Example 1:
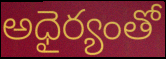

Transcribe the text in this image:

అధైర్యంతో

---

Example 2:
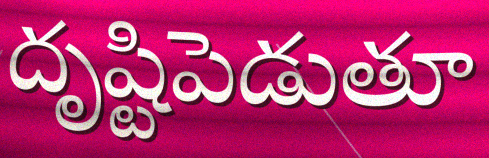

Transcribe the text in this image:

దృష్టిపెడుతూ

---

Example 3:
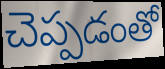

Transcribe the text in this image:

చెప్పడంతో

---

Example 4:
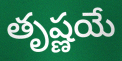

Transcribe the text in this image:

తృష్ణయే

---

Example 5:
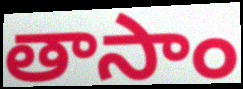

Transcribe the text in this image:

తాసాం